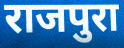
राजपुरा